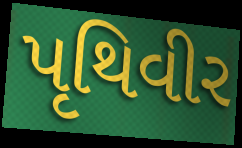
પૃથિવીર